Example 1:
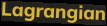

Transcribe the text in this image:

Lagrangian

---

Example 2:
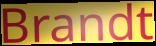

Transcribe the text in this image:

Brandt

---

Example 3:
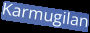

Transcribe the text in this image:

Karmugilan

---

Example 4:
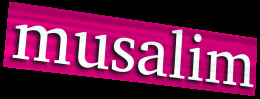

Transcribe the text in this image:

musalim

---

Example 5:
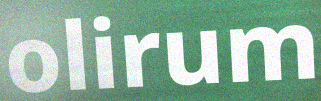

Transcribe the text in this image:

olirum